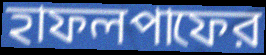
হাফলপাফের